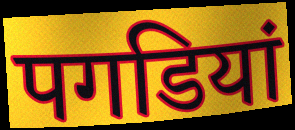
पगडियां